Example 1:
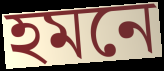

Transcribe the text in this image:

হমনে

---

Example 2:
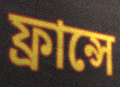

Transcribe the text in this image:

ফ্রান্সে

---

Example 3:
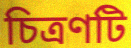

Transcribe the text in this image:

চিত্রণটি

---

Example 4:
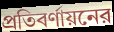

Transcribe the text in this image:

প্রতিবর্ণায়নের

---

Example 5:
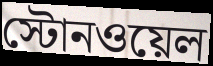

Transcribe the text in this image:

স্টোনওয়েল